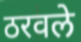
ठरवले